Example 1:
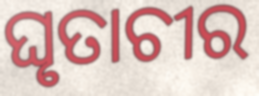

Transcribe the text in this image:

ଘୃତାଚୀର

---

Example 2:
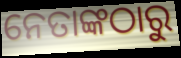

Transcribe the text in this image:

ନେତାଙ୍କଠାରୁ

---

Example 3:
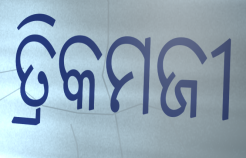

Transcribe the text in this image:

ତ୍ରିକମଜୀ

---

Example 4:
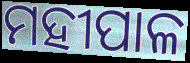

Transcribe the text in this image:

ମହୀପାଳ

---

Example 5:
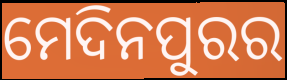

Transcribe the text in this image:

ମେଦିନପୁରର